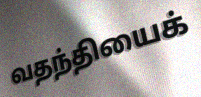
வதந்தியைக்